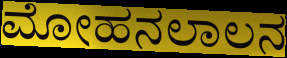
ಮೋಹನಲಾಲನ